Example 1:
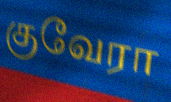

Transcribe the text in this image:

குவேரா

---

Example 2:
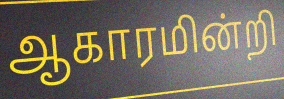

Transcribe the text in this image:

ஆகாரமின்றி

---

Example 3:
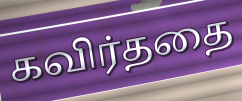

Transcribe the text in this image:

கவிர்ததை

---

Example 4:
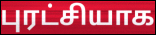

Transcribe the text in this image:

புரட்சியாக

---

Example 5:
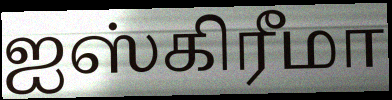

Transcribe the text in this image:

ஐஸ்கிரீமா